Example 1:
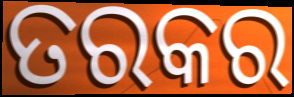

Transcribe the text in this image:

ତରକର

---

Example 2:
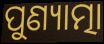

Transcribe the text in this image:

ପୁଣ୍ୟାତ୍ମା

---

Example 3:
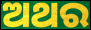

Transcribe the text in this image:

ଅଥର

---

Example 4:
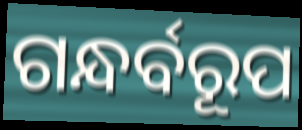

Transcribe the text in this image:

ଗନ୍ଧର୍ବରୂପ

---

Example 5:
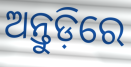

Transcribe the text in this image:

ଅନ୍ତୁଡ଼ିରେ